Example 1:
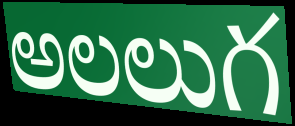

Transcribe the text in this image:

అలలుగ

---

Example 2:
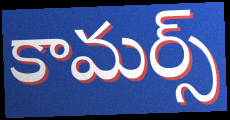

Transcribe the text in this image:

కామర్స్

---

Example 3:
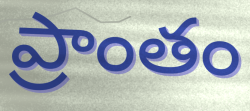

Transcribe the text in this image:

ప్రాంతం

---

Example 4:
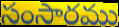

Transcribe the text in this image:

సంసారము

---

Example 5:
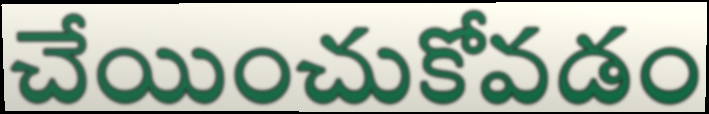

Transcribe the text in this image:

చేయించుకోవడం